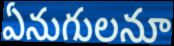
ఏనుగులనూ